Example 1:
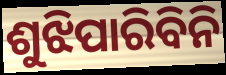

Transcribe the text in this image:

ଶୁଝିପାରିବିନି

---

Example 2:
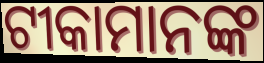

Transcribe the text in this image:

ଟୀକାମାନଙ୍କ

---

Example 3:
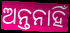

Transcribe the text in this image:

ଅନ୍ତନାହିଁ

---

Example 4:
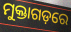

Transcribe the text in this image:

ମୁକ୍ତାଗଡ଼ରେ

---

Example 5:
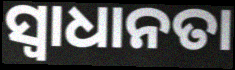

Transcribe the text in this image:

ସ୍ୱାଧାନତା